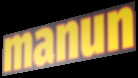
manun